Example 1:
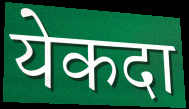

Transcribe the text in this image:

येकदा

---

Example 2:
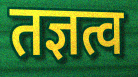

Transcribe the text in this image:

तज्ञत्व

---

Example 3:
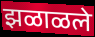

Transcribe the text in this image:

झळाळले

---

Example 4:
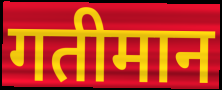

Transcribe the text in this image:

गतीमान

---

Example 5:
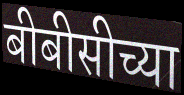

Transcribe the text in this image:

बीबीसीच्या